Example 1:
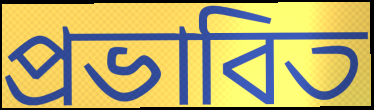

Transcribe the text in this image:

প্রভাবিত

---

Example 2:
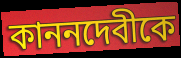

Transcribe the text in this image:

কাননদেবীকে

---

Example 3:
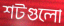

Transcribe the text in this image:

শটগুলো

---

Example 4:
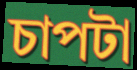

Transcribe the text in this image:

চাপটা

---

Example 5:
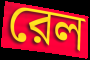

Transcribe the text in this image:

রেল